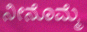
ನೀನೊಮ್ಮೆ